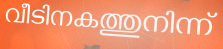
വീടിനകത്തുനിന്ന്